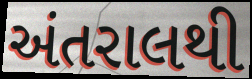
અંતરાલથી